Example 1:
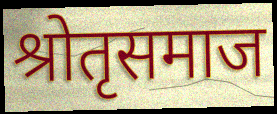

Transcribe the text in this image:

श्रोतृसमाज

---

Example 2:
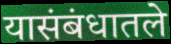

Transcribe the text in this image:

यासंबंधातले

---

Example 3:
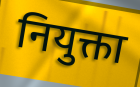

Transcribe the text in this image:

नियुक्ता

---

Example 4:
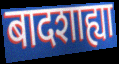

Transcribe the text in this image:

बादशाह्या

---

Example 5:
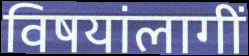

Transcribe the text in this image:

विषयांलागीं